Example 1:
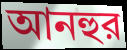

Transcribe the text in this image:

আনহুর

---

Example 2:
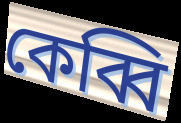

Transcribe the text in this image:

কেব্বি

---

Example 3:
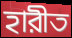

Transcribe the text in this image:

হারীত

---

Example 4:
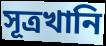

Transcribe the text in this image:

সূত্রখানি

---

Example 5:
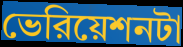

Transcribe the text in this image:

ভেরিয়েশনটা